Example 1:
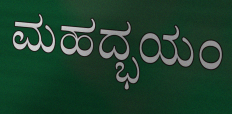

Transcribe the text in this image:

ಮಹದ್ಭಯಂ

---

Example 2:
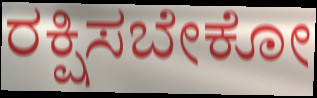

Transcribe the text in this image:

ರಕ್ಷಿಸಬೇಕೋ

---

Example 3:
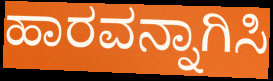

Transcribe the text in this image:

ಹಾರವನ್ನಾಗಿಸಿ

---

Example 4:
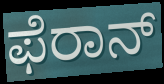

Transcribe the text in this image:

ಫೆರಾನ್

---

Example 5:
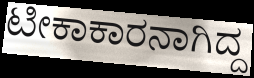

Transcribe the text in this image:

ಟೀಕಾಕಾರನಾಗಿದ್ದ